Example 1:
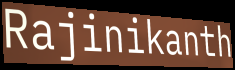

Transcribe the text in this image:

Rajinikanth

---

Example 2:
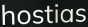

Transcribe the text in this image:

hostias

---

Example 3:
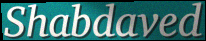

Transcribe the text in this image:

Shabdaved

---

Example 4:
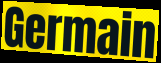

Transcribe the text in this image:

Germain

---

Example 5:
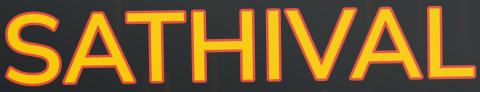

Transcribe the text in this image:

SATHIVAL